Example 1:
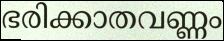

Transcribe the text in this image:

ഭരിക്കാതവണ്ണം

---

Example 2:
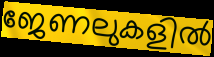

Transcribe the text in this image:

ജേണലുകളിൽ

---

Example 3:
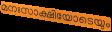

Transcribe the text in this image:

മനഃസാക്ഷിയോടെയും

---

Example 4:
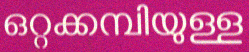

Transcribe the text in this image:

ഒറ്റക്കമ്പിയുള്ള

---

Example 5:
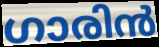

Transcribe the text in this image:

ഗാരിൻ